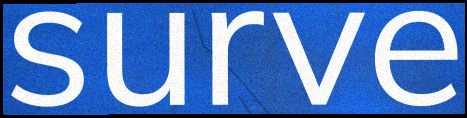
surve